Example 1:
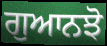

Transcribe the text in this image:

ਗੁਆਨਝੋ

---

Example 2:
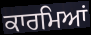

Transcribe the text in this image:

ਕਾਰਮਿਆਂ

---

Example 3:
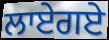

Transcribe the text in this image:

ਲਾਏਗਏ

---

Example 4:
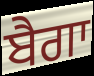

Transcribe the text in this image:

ਬੈਗਾ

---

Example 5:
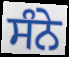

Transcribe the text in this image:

ਸੰਨੇ